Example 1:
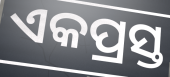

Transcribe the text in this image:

ଏକପ୍ରସ୍ତ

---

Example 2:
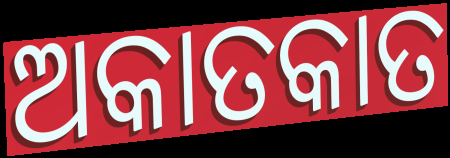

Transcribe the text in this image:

ଅକାତକାତ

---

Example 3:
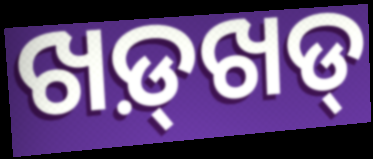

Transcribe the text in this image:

ଖଡ଼୍‌ଖଡ୍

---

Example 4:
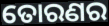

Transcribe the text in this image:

ତୋରଣର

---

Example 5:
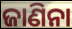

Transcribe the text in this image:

ଜାଣିନା